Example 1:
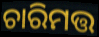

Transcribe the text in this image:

ଚାରିମତ୍ତ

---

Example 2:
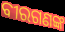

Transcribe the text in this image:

ବୀରଗଣଙ୍କ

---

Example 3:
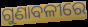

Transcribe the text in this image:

ଗୁଣାବଳୀରେ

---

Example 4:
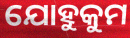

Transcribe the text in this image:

ଯୋହୁକୁମ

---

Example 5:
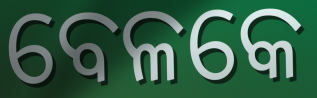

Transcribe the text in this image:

ବେଳକେ